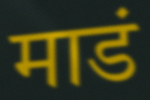
माडं